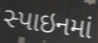
સ્પાઇનમાં